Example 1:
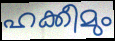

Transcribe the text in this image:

ഹക്കീമും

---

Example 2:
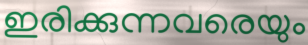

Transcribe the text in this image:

ഇരിക്കുന്നവരെയും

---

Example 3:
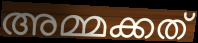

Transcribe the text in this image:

അമ്മക്കത്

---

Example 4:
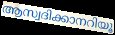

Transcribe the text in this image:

ആസ്വദിക്കാനറിയൂ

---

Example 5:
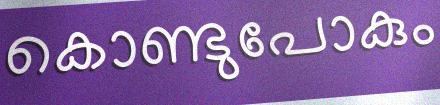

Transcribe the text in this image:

കൊണ്ടുപോകും